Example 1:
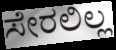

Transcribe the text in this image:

ಸೇರಲಿಲ್ಲ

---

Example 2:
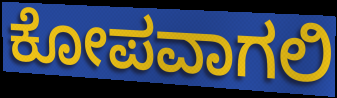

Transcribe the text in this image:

ಕೋಪವಾಗಲಿ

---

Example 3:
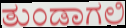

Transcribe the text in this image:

ತುಂಡಾಗಲಿ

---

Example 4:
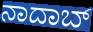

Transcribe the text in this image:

ನಾದಾಬ್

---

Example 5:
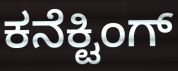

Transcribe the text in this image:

ಕನೆಕ್ಟಿಂಗ್